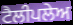
ਟੈਲੀਪਲੇਅ